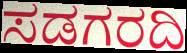
ಸಡಗರದಿ